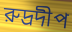
রুদ্রদীপ